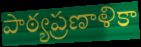
పాఠ్యప్రణాళికా